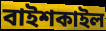
বাইশকাইল